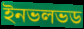
ইনভলভড